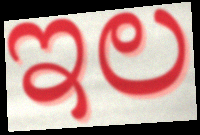
ಇಲ